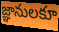
జ్ఞానులకూ